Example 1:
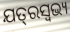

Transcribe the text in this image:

ଯତ୍‌ରସ୍ଵଭ୍ୟ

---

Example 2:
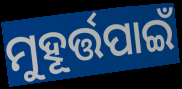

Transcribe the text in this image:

ମୁହୂର୍ତ୍ତପାଇଁ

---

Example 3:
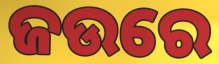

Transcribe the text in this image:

ଜଉରେ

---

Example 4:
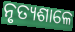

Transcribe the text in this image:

ନୃତ୍ୟଶାଳେ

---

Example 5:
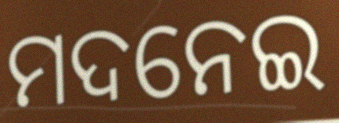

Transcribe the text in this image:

ମଦନେଇ